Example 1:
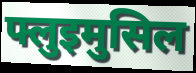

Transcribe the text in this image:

फ्लुइमुसिल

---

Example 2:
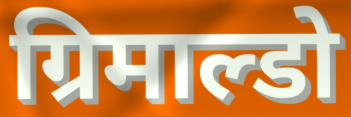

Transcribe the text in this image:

ग्रिमाल्डो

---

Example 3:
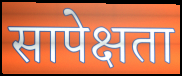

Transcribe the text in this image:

सापेक्षता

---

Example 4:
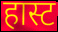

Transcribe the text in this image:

हास्ट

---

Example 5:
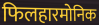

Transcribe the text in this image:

फिलहारमोनिक